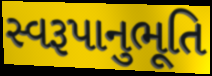
સ્વરૂપાનુભૂતિ